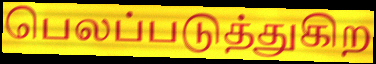
பெலப்படுத்துகிற